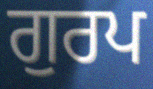
ਗੁਰਪ